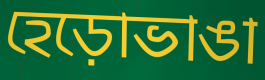
হেড়োভাঙা